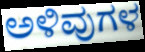
ಅಳಿವುಗಳ